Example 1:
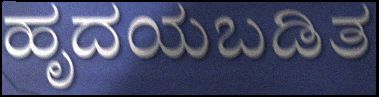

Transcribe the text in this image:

ಹೃದಯಬಡಿತ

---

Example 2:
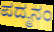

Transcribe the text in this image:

ಪದ್ಮನಂ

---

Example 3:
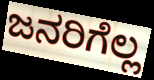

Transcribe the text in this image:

ಜನರಿಗೆಲ್ಲ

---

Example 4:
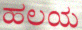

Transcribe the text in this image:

ಹಲಯ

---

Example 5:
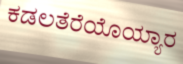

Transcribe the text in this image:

ಕಡಲತೆರೆಯೊಯ್ಯಾರ